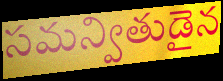
సమన్వితుడైన